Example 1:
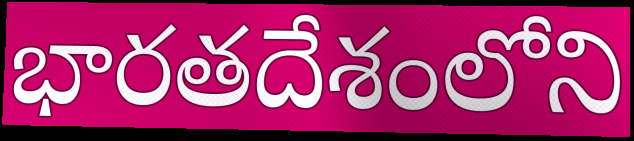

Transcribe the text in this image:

భారతదేశంలోని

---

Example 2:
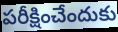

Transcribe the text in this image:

పరీక్షించేందుకు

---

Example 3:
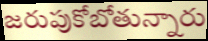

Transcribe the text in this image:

జరుపుకోబోతున్నారు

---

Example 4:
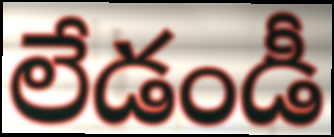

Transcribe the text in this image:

లేడండీ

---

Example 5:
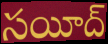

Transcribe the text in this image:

సయీద్